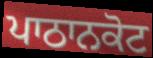
ਪਾਠਾਨਕੋਟ